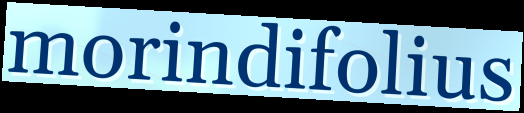
morindifolius